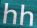
hh